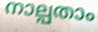
നാല്പതാം